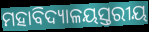
ମହାବିଦ୍ୟାଳୟସ୍ତରୀୟ